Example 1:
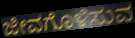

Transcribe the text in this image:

ಜೀವಗೊಳಿಸುವ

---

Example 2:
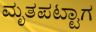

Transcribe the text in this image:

ಮೃತಪಟ್ಟಾಗ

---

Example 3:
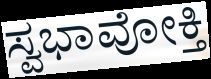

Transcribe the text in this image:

ಸ್ವಭಾವೋಕ್ತಿ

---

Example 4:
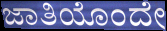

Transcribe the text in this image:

ಜಾತಿಯೊಂದೇ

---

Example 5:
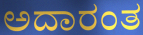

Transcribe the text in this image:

ಅದಾರಂತ